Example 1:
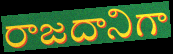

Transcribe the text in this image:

రాజదానిగా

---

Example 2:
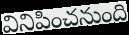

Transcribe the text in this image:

వినిపించనుంది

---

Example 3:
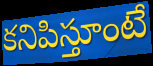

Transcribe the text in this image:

కనిపిస్తూంటే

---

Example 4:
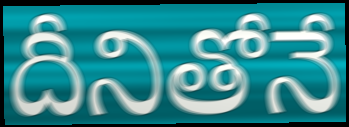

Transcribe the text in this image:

దీనితోనే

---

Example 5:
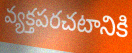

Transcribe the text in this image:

వ్యక్తపరచటానికి